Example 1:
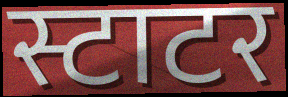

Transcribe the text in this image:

स्टाटर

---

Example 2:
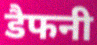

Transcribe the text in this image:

डैफनी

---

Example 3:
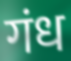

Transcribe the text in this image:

गंध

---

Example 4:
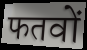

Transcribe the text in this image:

फतवों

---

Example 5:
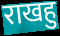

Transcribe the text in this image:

राखहु